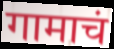
गामाचं